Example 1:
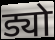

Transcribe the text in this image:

ड्यो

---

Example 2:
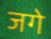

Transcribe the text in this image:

जगे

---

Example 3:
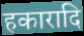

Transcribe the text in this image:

हकारादि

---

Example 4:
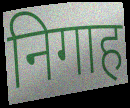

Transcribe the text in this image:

निगाह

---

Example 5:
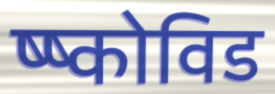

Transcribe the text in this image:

ष्ष्कोविड